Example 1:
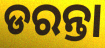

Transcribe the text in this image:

ଡରନ୍ତା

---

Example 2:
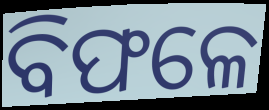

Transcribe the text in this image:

ବିଫଳେ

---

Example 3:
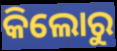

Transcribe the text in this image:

କିଲୋରୁ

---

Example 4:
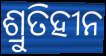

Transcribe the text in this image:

ଶ୍ରୁତିହୀନ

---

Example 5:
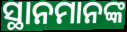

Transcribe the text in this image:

ସ୍ଥାନମାନଙ୍କ